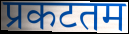
प्रकटतम